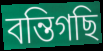
বন্তিগছি